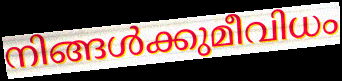
നിങ്ങൾക്കുമീവിധം